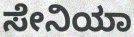
ಸೇನಿಯಾ